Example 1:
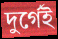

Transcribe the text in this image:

দুর্গেই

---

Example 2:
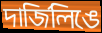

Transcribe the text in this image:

দার্জিলিঙে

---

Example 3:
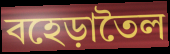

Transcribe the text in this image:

বহেড়াতৈল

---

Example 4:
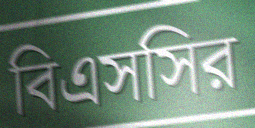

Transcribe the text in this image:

বিএসসির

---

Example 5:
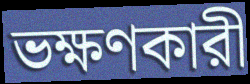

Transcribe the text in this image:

ভক্ষণকারী